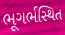
ભૂગર્ભસ્થિત